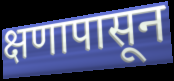
क्षणापासून